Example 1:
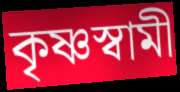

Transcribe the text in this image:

কৃষ্ণস্বামী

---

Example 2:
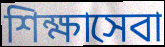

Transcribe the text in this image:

শিক্ষাসেবা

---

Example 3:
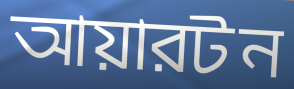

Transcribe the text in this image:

আয়ারটন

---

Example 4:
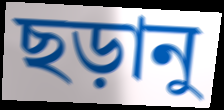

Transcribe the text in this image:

ছড়ানু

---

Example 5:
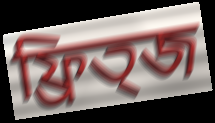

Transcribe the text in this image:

ফ্রিত্জ